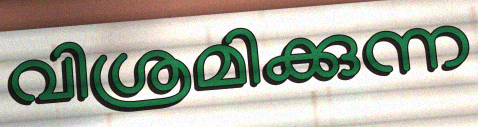
വിശ്രമിക്കുന്ന